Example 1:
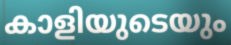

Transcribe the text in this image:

കാളിയുടെയും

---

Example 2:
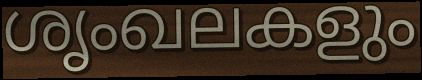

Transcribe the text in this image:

ശൃംഖലകളും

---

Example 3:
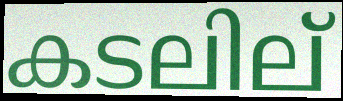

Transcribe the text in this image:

കടലില്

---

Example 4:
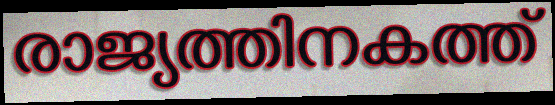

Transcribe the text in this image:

രാജ്യത്തിനകത്ത്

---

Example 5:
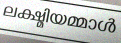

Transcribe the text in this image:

ലക്ഷ്മിയമ്മാൾ